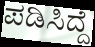
ಪಡಿಸಿದ್ದೆ